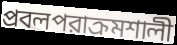
প্রবলপরাক্রমশালী